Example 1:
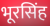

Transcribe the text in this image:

भूरसिंह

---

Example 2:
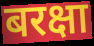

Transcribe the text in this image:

बरक्षा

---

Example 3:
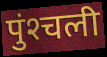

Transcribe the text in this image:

पुंश्चली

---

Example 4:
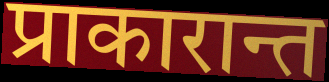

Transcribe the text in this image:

प्राकारान्त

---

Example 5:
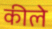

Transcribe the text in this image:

कीले